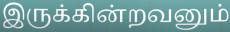
இருக்கின்றவனும்